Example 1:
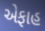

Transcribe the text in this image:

એફાહ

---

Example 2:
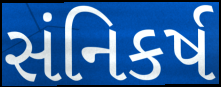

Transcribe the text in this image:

સંનિકર્ષ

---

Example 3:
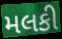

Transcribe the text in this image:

મલકી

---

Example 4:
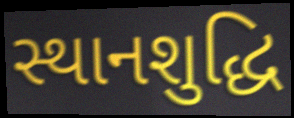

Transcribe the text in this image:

સ્થાનશુદ્ધિ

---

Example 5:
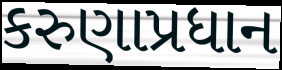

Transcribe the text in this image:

કરુણાપ્રધાન